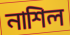
নাশিল